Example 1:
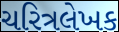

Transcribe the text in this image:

ચરિત્રલેખક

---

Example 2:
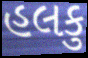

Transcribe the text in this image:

હલકુ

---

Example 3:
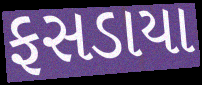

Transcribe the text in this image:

ફસડાયા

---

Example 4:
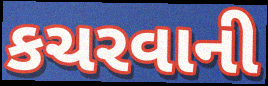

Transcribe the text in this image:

કચરવાની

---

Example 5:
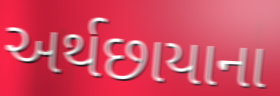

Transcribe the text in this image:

અર્થછાયાના